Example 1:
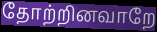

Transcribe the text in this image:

தோற்றினவாறே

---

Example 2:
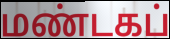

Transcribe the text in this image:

மண்டகப்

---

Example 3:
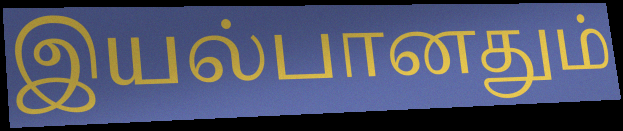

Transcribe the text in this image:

இயல்பானதும்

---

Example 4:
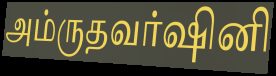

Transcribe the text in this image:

அம்ருதவர்ஷினி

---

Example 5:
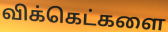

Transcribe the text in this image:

விக்கெட்களை